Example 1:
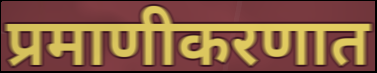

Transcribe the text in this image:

प्रमाणीकरणात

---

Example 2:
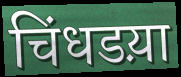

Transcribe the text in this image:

चिंधडय़ा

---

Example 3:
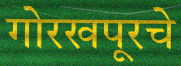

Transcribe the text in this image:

गोरखपूरचे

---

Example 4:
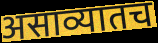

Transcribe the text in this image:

असाव्यातच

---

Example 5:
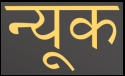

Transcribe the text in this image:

न्यूक